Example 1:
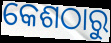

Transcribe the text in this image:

କେଶଠାରୁ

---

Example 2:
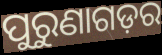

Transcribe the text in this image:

ପୁରୁଣାଗଡ଼ର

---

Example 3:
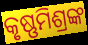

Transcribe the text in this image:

କୃଷ୍ଣମିଶ୍ରଙ୍କ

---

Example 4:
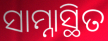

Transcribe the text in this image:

ସାମ୍ନାସ୍ଥିତ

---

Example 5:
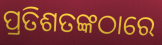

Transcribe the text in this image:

ପ୍ରତିଶତଙ୍କଠାରେ